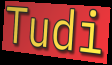
Tudi